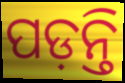
ପଡ଼ନ୍ତି